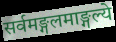
सर्वमङ्गलमाङ्गल्ये